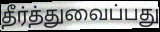
தீர்த்துவைப்பது